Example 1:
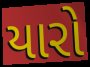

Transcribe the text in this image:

યારો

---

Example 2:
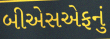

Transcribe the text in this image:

બીએસએફનું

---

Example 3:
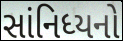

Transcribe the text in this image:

સાંનિધ્યનો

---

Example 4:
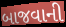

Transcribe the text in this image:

બાજવાની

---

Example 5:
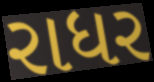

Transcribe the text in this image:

રાધર